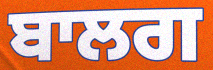
ਬਾਲਗ